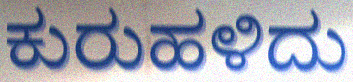
ಕುರುಹಳಿದು